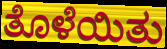
ತೊಳೆಯಿತು